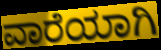
ವಾರೆಯಾಗಿ